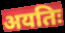
अयतिः